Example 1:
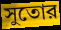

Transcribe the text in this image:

সুতোর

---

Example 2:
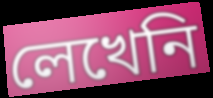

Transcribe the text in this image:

লেখেনি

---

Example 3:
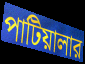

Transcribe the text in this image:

পাটিয়ালার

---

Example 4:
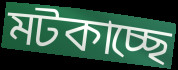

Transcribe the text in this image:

মটকাচ্ছে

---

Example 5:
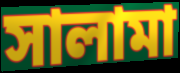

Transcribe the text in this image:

সালামা